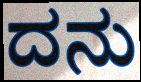
ದನು